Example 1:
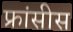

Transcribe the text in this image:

फ्रांसीस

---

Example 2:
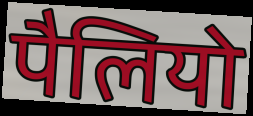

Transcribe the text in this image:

पैलियो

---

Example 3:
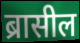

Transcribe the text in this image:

ब्रासील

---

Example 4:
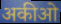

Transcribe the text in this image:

अकीओ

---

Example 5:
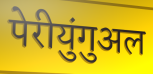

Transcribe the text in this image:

पेरीयुंगुअल